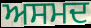
ਅਸਮਦ